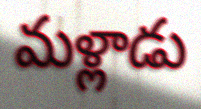
మళ్లాడు